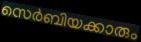
സെർബിയക്കാരും